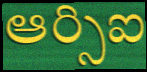
ఆర్సిఐ